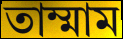
তাম্মাম